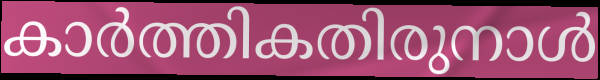
കാർത്തികതിരുനാൾ